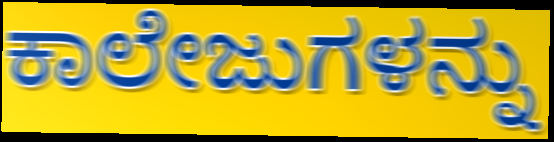
ಕಾಲೇಜುಗಳನ್ನು